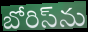
బోరిస్‌ను